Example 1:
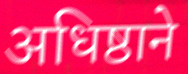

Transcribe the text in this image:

अधिष्ठाने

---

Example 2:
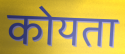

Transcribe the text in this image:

कोयता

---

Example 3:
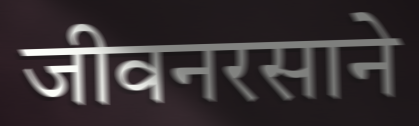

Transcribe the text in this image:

जीवनरसाने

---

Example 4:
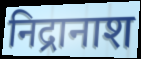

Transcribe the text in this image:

निद्रानाश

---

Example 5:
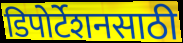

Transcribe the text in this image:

डिपोर्टेशनसाठी